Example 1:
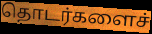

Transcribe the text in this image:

தொடர்களைச்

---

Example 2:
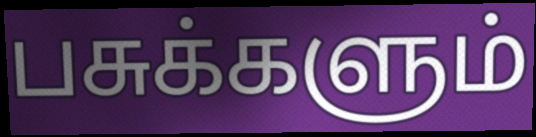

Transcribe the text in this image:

பசுக்களும்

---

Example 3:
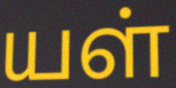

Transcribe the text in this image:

யள்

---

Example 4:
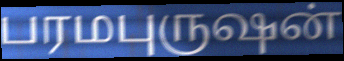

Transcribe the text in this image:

பரமபுருஷன்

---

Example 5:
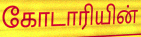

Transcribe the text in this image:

கோடாரியின்